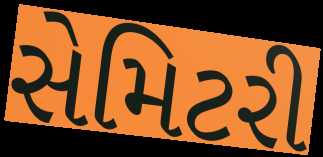
સેમિટરી